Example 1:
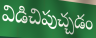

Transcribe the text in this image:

విడిచిపుచ్చడం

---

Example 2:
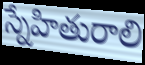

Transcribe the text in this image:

స్నేహితురాలి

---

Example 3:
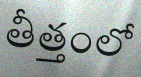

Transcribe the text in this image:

తీత్తంలో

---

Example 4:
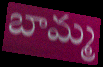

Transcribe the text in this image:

బామ్మ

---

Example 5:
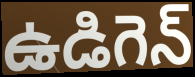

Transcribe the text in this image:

ఉడిగెన్